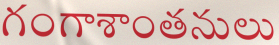
గంగాశాంతనులు